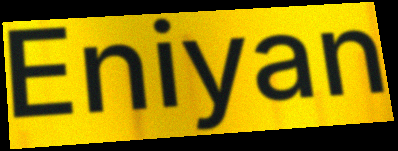
Eniyan